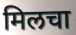
मिलचा